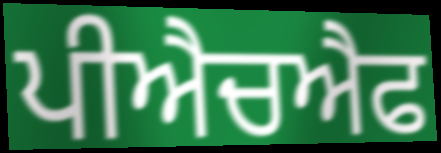
ਪੀਐਚਐਫ